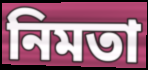
নিমতা